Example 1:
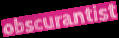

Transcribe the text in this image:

obscurantist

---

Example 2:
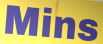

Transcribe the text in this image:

Mins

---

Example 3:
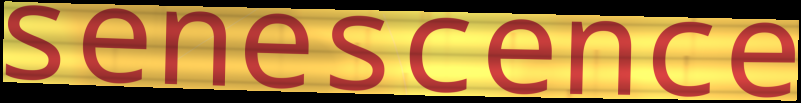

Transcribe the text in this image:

senescence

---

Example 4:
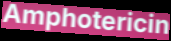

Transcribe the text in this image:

Amphotericin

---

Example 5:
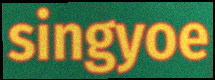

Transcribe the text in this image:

singyoe